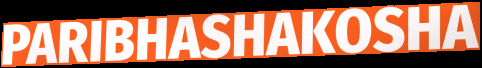
PARIBHASHAKOSHA